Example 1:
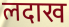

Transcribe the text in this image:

लदाख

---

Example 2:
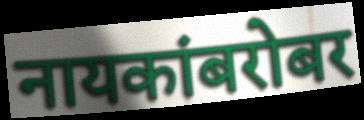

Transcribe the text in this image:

नायकांबरोबर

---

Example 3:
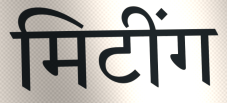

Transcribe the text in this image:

मिटींग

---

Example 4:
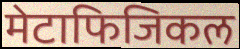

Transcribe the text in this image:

मेटाफिजिकल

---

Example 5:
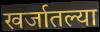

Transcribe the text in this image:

खर्जातल्या